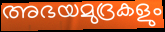
അഭയമുദ്രകളും